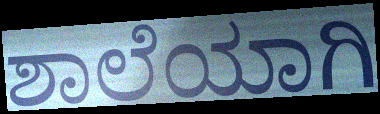
ಶಾಲೆಯಾಗಿ